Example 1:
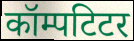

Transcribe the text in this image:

कॉम्पटिटर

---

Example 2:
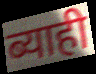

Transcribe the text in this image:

ब्याही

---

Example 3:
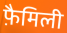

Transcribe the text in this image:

फ़ैमिली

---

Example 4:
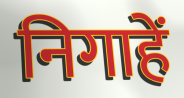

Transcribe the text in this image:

निगाहें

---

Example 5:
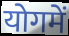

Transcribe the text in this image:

योगमें